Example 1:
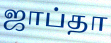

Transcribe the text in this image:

ஜாப்தா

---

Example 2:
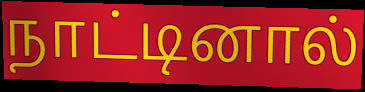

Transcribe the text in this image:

நாட்டினால்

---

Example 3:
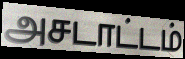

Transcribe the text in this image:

அசடாட்டம்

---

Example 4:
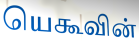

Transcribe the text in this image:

யெகூவின்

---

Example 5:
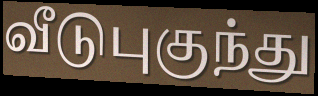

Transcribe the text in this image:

வீடுபுகுந்து